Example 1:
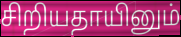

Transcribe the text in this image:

சிறியதாயினும்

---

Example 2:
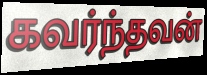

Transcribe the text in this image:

கவர்ந்தவன்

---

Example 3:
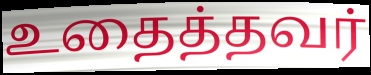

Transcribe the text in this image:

உதைத்தவர்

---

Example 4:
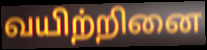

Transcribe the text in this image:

வயிற்றினை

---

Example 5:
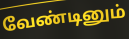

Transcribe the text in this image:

வேண்டினும்